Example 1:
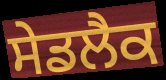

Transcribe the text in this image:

ਸੇਡਲੈਕ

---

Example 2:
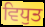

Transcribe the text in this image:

ਵਿਧੁਤ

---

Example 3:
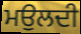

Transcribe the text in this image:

ਮਉਲਦੀ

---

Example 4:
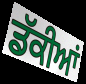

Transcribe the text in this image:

ਡੱਕੀਆਂ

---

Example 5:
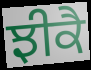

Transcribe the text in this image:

ਝੀਕੈ